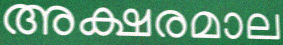
അക്ഷരമാല